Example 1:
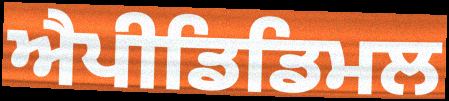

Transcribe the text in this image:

ਐਪੀਡਿਡਿਮਲ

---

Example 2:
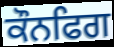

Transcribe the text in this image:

ਕੌਨਫਿਗ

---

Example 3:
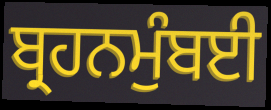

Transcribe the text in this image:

ਬ੍ਰਹਨਮੁੰਬਈ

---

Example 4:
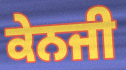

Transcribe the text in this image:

ਕੇਨਜੀ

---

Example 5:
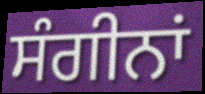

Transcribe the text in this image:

ਸੰਗੀਨਾਂ